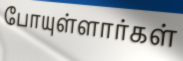
போயுள்ளார்கள்